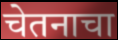
चेतनाचा